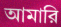
আমারি